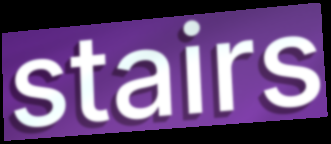
stairs